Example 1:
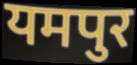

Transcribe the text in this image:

यमपुर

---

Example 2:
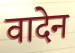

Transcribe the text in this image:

वादेन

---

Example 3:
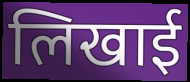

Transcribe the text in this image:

लिखाई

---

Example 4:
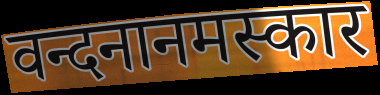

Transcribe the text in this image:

वन्दनानमस्कार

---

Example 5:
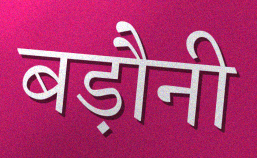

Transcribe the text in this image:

बड़ौनी